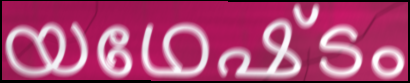
യഥേഷ്‌ടം